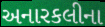
અનારકલીના